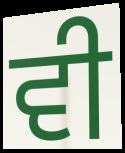
ਵੀ